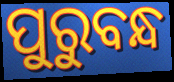
ପୁରୁବନ୍ଧ